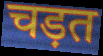
चड़त